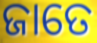
ଜାତେ